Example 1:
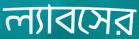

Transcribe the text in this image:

ল্যাবসের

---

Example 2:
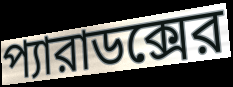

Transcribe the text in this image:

প্যারাডক্সের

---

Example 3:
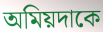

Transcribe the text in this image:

অমিয়দাকে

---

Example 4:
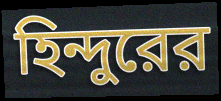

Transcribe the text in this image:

হিন্দুরের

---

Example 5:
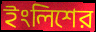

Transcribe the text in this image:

ইংলিশের